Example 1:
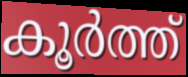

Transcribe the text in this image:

കൂർത്ത്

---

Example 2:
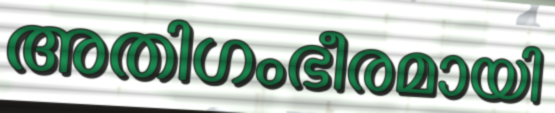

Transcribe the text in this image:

അതിഗംഭീരമായി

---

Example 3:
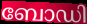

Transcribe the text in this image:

ബോഡി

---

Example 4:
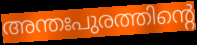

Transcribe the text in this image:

അന്തഃപുരത്തിന്റെ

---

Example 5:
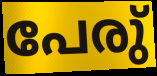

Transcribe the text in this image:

പേരു്